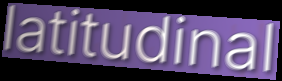
latitudinal